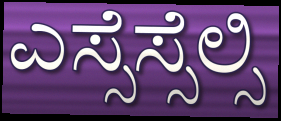
ಎಸ್ಸೆಸ್ಸೆಲ್ಸಿ